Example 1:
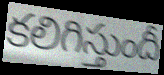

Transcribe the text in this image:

కలిగిస్తుందీ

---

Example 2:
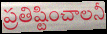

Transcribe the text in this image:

ప్రతిష్టించాలనీ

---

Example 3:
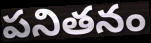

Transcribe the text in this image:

పనితనం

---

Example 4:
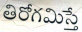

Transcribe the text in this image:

తిరోగమిస్తే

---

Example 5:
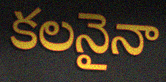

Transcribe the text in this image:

కలనైనా